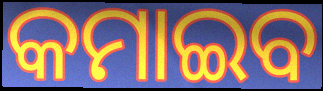
କମାଇବ